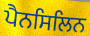
ਪੈਨਸਿਲਿਨ